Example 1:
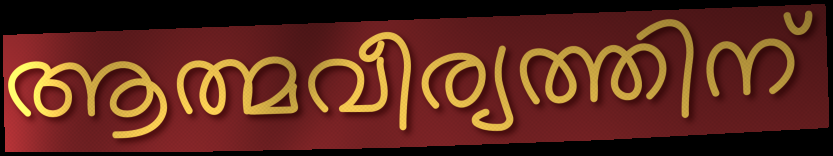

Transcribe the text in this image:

ആത്മവീര്യത്തിന്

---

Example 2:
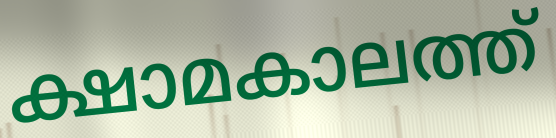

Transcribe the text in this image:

ക്ഷാമകാലത്ത്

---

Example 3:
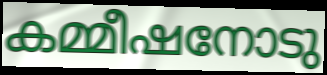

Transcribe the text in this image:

കമ്മീഷനോടു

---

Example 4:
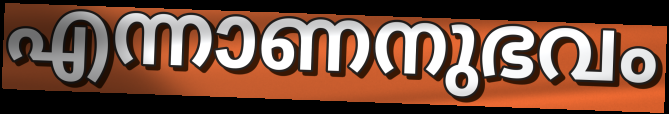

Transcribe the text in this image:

എന്നാണനുഭവം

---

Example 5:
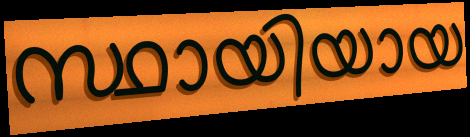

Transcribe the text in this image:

സ്ഥായിയായ